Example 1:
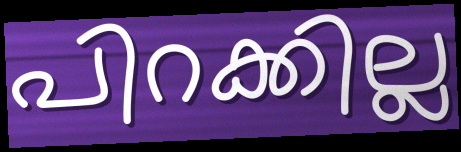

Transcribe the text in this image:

പിറക്കില്ല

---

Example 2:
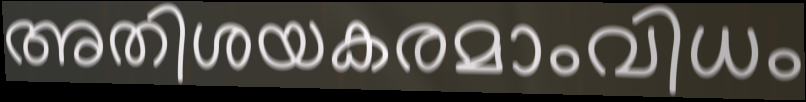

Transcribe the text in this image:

അതിശയകരമാംവിധം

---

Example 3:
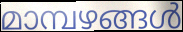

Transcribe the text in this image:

മാമ്പഴങ്ങൾ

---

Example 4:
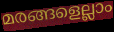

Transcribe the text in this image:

മരങ്ങളെല്ലാം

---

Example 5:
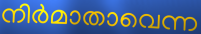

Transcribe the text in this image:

നിർമാതാവെന്ന